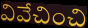
వివేచించి